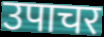
उपाचर